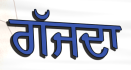
ਗੱਜਦਾ